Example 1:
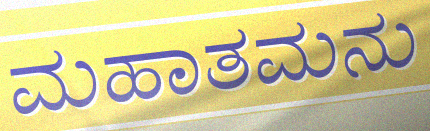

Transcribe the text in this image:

ಮಹಾತಮನು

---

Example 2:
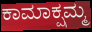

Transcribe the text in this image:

ಕಾಮಾಕ್ಷಮ್ಮ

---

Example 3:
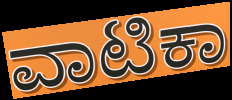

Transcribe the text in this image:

ವಾಟಿಕಾ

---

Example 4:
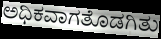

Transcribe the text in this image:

ಅಧಿಕವಾಗತೊಡಗಿತು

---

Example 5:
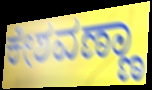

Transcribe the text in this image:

ಕೇಶವಣ್ಣಾ